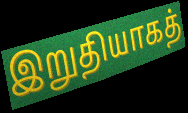
இறுதியாகத்